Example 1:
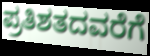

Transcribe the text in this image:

ಪ್ರತಿಶತದವರೆಗೆ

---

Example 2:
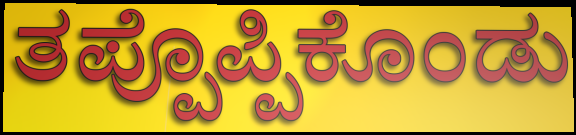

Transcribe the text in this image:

ತಪ್ಪೊಪ್ಪಿಕೊಂಡು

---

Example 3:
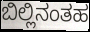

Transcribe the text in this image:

ಬಿಲ್ಲಿನಂತಹ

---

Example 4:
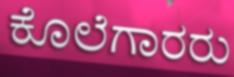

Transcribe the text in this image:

ಕೊಲೆಗಾರರು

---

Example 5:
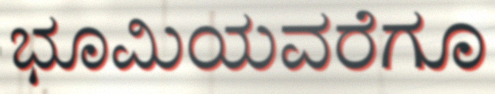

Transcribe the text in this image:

ಭೂಮಿಯವರೆಗೂ